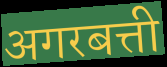
अगरबत्ती